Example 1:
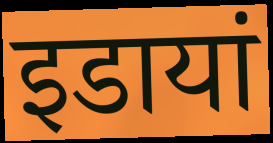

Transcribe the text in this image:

इडायां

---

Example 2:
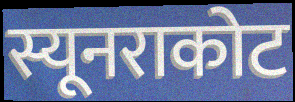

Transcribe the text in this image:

स्यूनराकोट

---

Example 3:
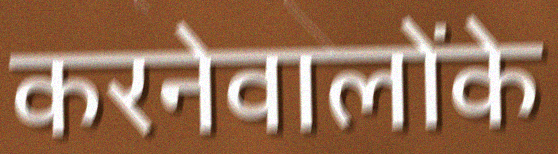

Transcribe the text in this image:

करनेवालोंके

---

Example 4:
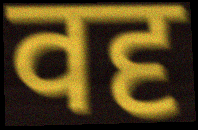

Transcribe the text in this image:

वदृ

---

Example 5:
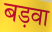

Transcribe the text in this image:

बड़वा